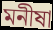
মনীষা